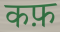
कफ़